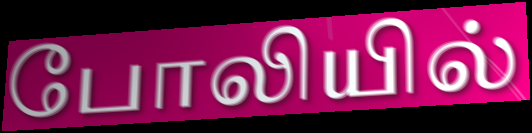
போலியில்